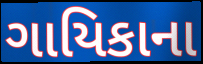
ગાયિકાના